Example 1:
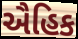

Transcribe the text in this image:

ઐહિક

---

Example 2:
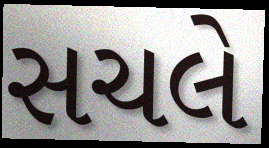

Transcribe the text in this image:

સચલે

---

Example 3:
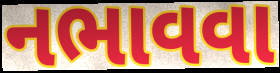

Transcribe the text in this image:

નભાવવા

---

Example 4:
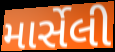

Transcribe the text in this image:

માર્સેલી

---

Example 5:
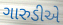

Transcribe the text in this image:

ગારુડીએ